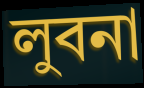
লুবনা